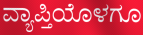
ವ್ಯಾಪ್ತಿಯೊಳಗೂ